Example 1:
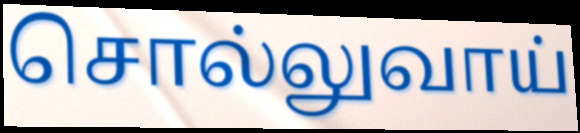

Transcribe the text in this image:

சொல்லுவாய்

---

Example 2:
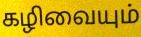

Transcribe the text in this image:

கழிவையும்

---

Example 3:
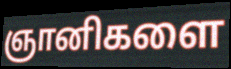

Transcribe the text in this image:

ஞானிகளை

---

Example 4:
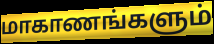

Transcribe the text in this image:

மாகாணங்களும்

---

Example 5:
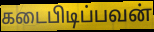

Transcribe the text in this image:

கடைபிடிப்பவன்